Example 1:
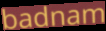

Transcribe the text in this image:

badnam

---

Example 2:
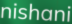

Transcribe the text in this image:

nishani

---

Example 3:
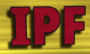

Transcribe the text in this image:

IPF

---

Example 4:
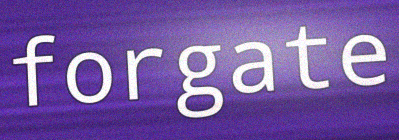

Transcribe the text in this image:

forgate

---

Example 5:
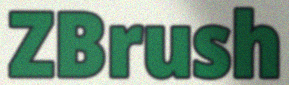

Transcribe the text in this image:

ZBrush